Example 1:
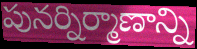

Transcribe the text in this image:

పునర్నిర్మాణాన్ని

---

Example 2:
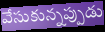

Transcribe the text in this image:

వేసుకున్నప్పుడు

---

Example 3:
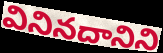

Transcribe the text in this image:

వినినదానిని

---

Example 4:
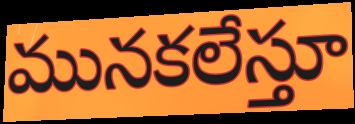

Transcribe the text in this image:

మునకలేస్తూ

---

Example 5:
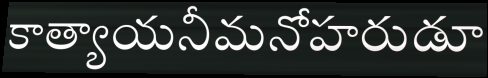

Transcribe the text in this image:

కాత్యాయనీమనోహరుడూ